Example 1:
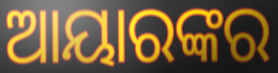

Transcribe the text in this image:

ଆୟାରଙ୍କର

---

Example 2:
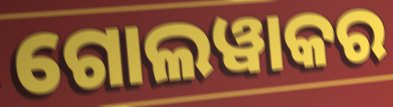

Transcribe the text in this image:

ଗୋଲୱାକର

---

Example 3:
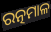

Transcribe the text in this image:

ରତ୍ନମାଳ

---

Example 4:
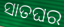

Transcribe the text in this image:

ସାତଘର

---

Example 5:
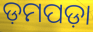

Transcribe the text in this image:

ଡ଼ମପଡ଼ା